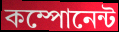
কম্পোনেন্ট